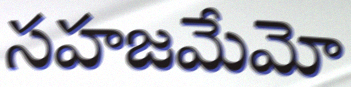
సహజమేమో